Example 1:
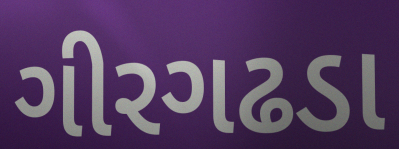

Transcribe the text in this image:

ગીરગઢડા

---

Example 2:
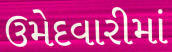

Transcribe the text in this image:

ઉમેદવારીમાં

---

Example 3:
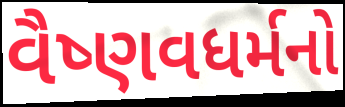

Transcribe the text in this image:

વૈષ્ણવધર્મનો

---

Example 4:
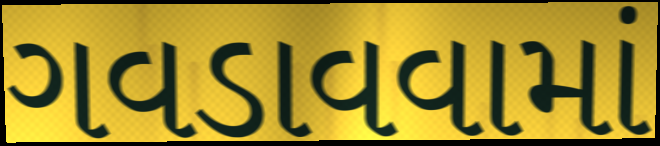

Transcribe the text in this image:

ગવડાવવામાં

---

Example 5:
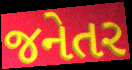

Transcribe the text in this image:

જનેતર